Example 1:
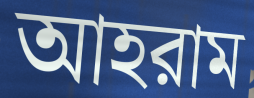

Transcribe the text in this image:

আহরাম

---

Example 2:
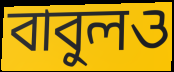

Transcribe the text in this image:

বাবুলও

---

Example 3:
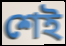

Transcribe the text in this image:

শেই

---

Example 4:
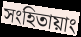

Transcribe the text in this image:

সংহিতায়াং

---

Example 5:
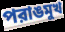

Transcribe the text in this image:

পরাঙমুখ